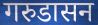
गरुडासन